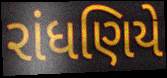
રાંધણિયે